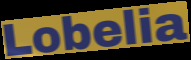
Lobelia